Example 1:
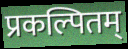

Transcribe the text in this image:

प्रकल्पितम्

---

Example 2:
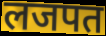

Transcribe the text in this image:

लजपत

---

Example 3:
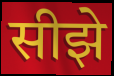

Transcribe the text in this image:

सीझे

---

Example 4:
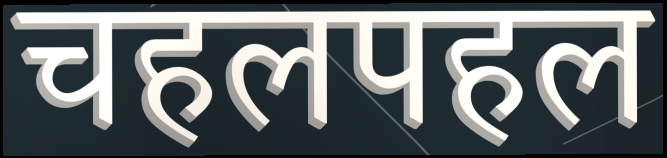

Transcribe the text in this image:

चहलपहल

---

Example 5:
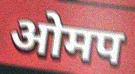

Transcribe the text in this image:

ओमप